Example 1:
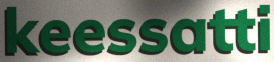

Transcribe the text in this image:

keessatti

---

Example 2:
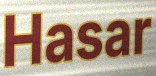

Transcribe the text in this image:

Hasar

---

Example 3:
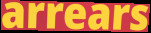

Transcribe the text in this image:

arrears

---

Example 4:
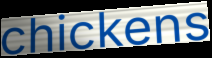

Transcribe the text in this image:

chickens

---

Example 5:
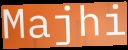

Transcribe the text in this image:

Majhi